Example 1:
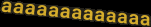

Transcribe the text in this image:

aaaaaaaaaaaaa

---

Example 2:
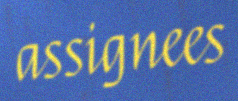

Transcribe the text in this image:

assignees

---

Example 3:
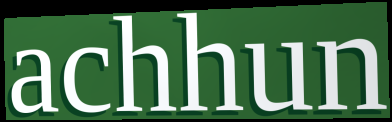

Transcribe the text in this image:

achhun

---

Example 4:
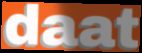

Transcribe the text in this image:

daat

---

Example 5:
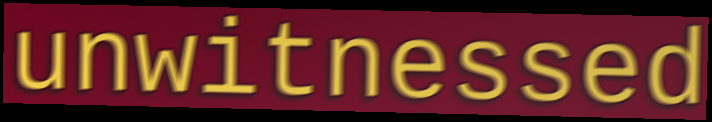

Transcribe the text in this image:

unwitnessed